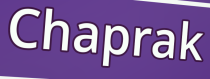
Chaprak